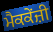
ਮੈਕਕੇਂਜ਼ੀ